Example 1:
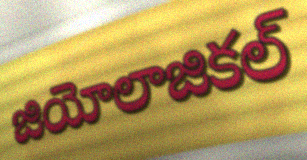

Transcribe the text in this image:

జియోలాజికల్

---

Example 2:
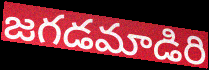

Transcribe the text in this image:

జగడమాడిరి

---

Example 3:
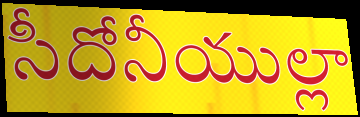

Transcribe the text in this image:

సీదోనీయుల్లా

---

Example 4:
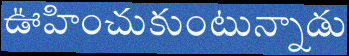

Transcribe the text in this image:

ఊహించుకుంటున్నాడు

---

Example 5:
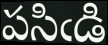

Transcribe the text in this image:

పసిఁడి